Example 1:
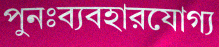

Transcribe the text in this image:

পুনঃব্যবহারযোগ্য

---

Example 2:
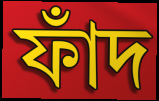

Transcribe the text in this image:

ফাঁদ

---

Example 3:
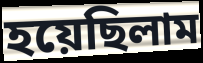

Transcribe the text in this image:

হয়েছিলাম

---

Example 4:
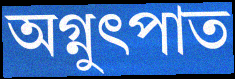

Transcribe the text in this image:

অগ্নুৎপাত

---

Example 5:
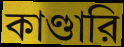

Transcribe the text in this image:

কাণ্ডারি